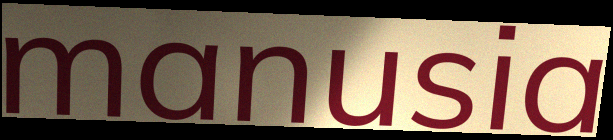
manusia